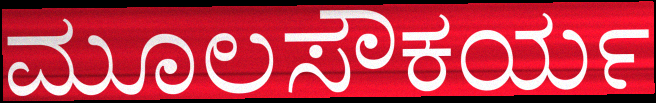
ಮೂಲಸೌಕರ್ಯ